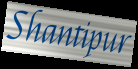
Shantipur